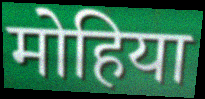
मोहिया